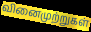
வினைமுற்றுகள்